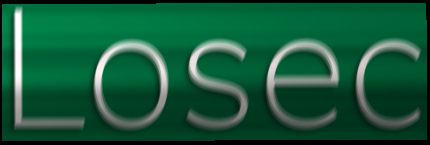
Losec